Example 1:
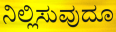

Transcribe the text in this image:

ನಿಲ್ಲಿಸುವುದೂ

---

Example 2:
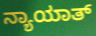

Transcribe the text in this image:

ನ್ಯಾಯಾತ್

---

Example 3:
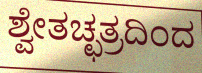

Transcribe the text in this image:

ಶ್ವೇತಚ್ಛತ್ರದಿಂದ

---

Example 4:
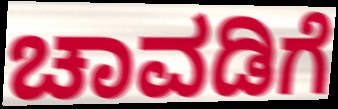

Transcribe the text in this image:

ಚಾವಡಿಗೆ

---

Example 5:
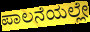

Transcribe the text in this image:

ಪಾಲನೆಯಲ್ಲೇ